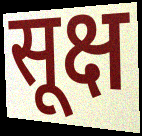
सूक्ष